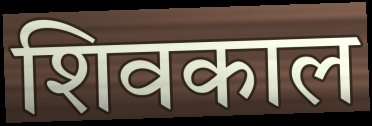
शिवकाल